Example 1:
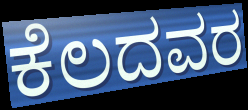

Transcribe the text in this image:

ಕೆಲದವರ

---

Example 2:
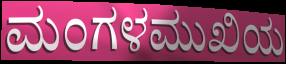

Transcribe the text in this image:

ಮಂಗಳಮುಖಿಯ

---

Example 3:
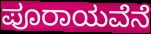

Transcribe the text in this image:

ಪೂರಾಯವೆನೆ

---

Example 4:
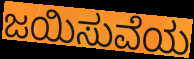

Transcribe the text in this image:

ಜಯಿಸುವೆಯ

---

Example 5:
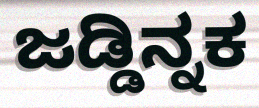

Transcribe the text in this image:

ಜಡ್ಡಿನ್ನಕ